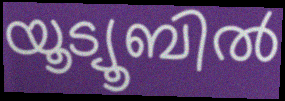
യൂട്യൂബിൽ